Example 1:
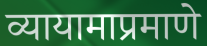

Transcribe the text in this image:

व्यायामाप्रमाणे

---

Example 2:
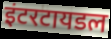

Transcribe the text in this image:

इंटरटायडल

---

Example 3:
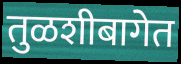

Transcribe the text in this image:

तुळशीबागेत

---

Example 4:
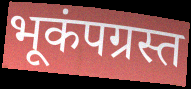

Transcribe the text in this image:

भूकंपग्रस्त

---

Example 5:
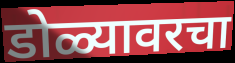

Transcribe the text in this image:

डोळ्यावरचा